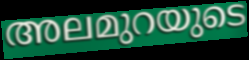
അലമുറയുടെ